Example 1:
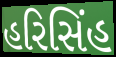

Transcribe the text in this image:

હરિસિંહ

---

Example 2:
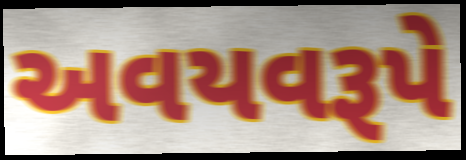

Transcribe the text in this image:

અવયવરૂપે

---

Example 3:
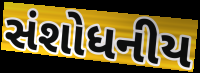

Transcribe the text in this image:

સંશોધનીય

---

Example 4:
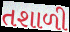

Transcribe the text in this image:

તશાળી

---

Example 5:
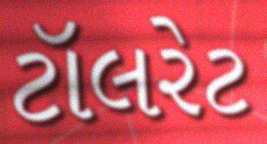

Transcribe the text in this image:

ટૉલરેટ